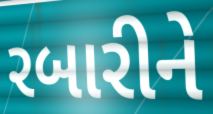
રબારીને